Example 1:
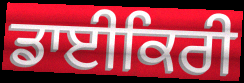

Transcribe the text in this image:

ਡਾਈਕਿਰੀ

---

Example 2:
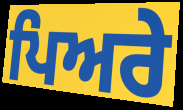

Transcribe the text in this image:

ਪਿਅਰੇ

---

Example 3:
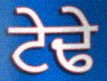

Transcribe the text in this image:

ਟੇਢੇ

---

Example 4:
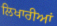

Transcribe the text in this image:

ਲਿਖਾਰੀਆਂ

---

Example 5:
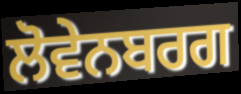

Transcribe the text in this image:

ਲੋਵੇਨਬਰਗ